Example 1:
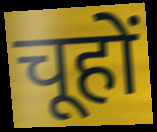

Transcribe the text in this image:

चूहों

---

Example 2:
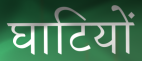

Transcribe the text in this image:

घाटियों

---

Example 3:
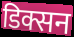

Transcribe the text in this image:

डिक्सन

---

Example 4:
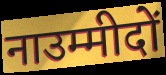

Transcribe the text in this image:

नाउम्मीदों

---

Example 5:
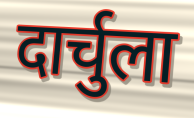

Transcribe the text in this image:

दार्चुला